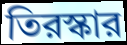
তিরস্কার